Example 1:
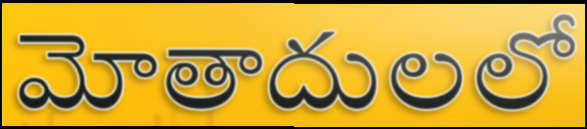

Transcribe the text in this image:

మోతాదులలో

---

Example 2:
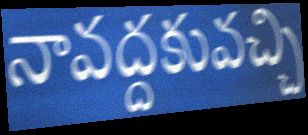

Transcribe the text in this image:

నావద్దకువచ్చి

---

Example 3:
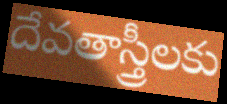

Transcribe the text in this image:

దేవతాస్త్రీలకు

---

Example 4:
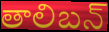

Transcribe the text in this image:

తాలిబన్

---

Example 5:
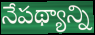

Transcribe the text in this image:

నేపథ్యాన్ని